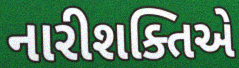
નારીશક્તિએ